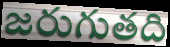
జరుగుతది